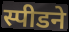
स्पीडने